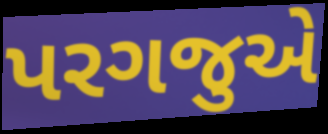
પરગજુએ